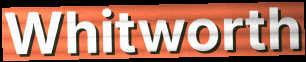
Whitworth